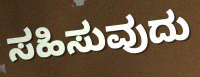
ಸಹಿಸುವುದು